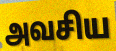
அவசிய